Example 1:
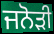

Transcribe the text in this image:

ਜਨੋੜੀ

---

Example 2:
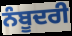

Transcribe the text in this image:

ਨੰਬੂਦਰੀ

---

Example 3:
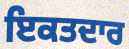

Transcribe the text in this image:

ਇਕਤਦਾਰ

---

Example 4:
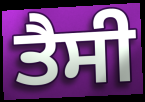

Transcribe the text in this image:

ਤੈਸੀ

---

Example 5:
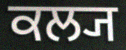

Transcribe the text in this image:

ਕਲ੍ਯ